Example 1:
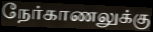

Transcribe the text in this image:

நேர்காணலுக்கு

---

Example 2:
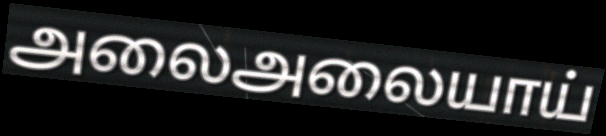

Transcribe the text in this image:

அலைஅலையாய்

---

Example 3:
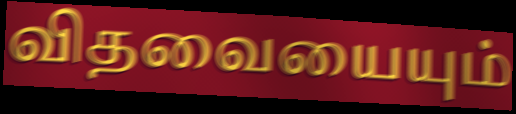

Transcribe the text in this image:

விதவையையும்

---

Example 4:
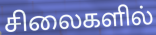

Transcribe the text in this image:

சிலைகளில்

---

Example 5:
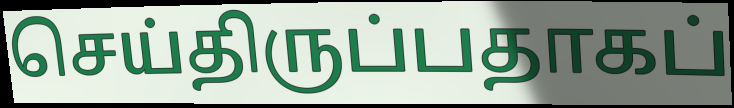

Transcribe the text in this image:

செய்திருப்பதாகப்